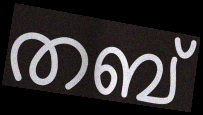
തബ്